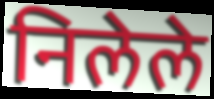
निलेले